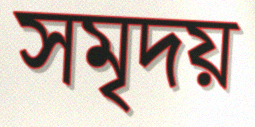
সমৃদয়